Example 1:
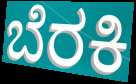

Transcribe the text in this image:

ಬೆರಕಿ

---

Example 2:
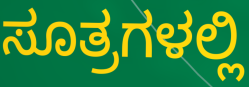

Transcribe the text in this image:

ಸೂತ್ರಗಳಲ್ಲಿ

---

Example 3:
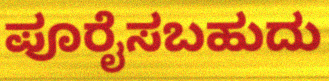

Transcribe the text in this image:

ಪೂರೈಸಬಹುದು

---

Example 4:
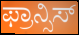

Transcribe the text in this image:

ಫ್ರಾನ್ಸಿಸ್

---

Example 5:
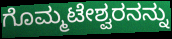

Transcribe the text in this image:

ಗೊಮ್ಮಟೇಶ್ವರನನ್ನು